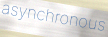
asynchronous